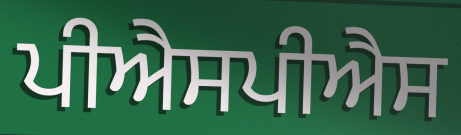
ਪੀਐਸਪੀਐਸ